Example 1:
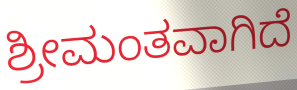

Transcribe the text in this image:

ಶ್ರೀಮಂತವಾಗಿದೆ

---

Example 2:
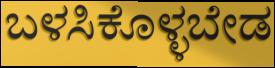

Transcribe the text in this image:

ಬಳಸಿಕೊಳ್ಳಬೇಡ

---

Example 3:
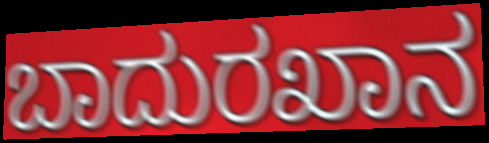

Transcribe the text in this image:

ಬಾದುರಖಾನ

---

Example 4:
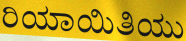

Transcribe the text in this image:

ರಿಯಾಯಿತಿಯು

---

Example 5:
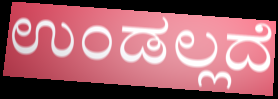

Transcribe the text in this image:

ಉಂಡಲ್ಲದೆ